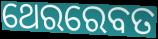
ଥେରରେବତ